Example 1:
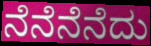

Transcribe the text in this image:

ನೆನೆನೆನೆದು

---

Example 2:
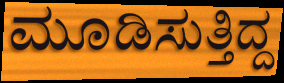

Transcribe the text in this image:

ಮೂಡಿಸುತ್ತಿದ್ದ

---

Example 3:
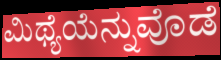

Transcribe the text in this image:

ಮಿಥ್ಯೆಯೆನ್ನುವೊಡೆ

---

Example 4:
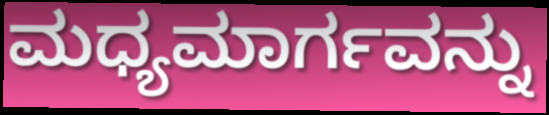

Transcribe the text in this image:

ಮಧ್ಯಮಾರ್ಗವನ್ನು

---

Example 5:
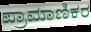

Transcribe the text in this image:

ಪ್ರಾಮಾಣಿಕರ